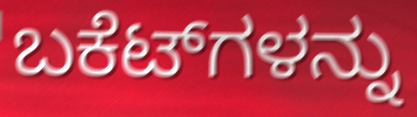
ಬಕೆಟ್‌ಗಳನ್ನು